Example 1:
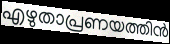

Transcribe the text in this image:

എഴുതാപ്രണയത്തിൻ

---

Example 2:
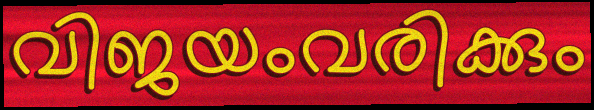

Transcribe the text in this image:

വിജയംവരിക്കും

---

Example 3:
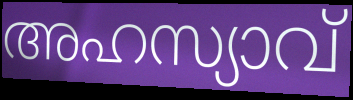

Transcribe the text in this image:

അഹസ്യാവ്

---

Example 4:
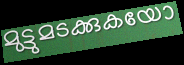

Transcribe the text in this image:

മുട്ടുമടക്കുകയോ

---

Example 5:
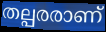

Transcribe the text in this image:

തല്പരരാണ്